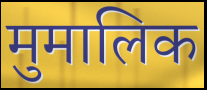
मुमालिक